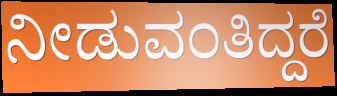
ನೀಡುವಂತಿದ್ದರೆ